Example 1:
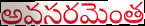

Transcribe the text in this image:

అవసరమెంత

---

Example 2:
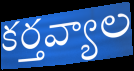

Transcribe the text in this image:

కర్తవ్యాల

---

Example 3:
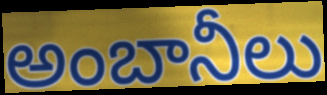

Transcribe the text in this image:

అంబానీలు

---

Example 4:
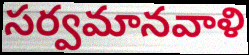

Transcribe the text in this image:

సర్వమానవాళి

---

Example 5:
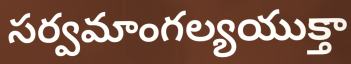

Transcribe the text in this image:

సర్వమాంగల్యయుక్తా